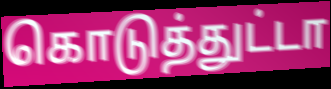
கொடுத்துட்டா